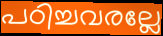
പഠിച്ചവരല്ലേ